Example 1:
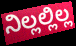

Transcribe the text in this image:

ನಿಲ್ಲಲ್ಲಿಲ್ಲ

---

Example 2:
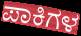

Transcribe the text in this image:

ಪಾಕಿಗಳ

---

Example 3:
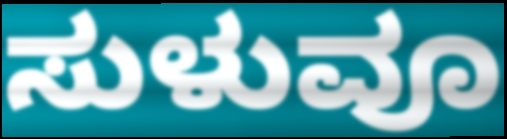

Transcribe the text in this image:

ಸುಳುವೂ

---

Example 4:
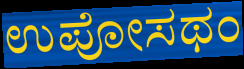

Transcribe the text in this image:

ಉಪೋಸಥಂ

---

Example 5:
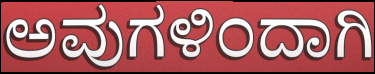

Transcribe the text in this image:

ಅವುಗಳಿಂದಾಗಿ